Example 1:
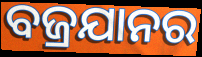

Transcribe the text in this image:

ବଜ୍ରଯାନର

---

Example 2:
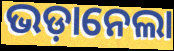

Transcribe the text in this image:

ଭଡ଼ାନେଲା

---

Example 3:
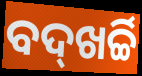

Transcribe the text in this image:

ବଦ୍‌ଖର୍ଚ୍ଚି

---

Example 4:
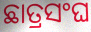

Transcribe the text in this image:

ଛାତ୍ରସଂଘ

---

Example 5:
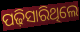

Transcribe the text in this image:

ପଢ଼ିସାରିଥିଲେ